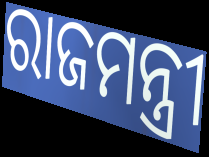
ରାଜମନ୍ତ୍ରୀ